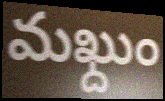
మఖ్దుం